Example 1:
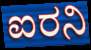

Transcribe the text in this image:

ಐರನಿ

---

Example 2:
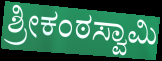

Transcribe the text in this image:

ಶ್ರೀಕಂಠಸ್ವಾಮಿ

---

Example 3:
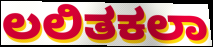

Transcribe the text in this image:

ಲಲಿತಕಲಾ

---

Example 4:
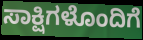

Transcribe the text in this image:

ಸಾಕ್ಷಿಗಳೊಂದಿಗೆ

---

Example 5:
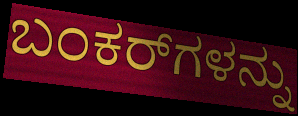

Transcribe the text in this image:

ಬಂಕರ್‌ಗಳನ್ನು